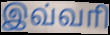
இவ்வரி